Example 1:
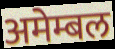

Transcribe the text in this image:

अमेम्बल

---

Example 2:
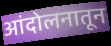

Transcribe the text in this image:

आंदोलनातून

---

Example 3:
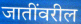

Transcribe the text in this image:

जातींवरील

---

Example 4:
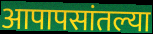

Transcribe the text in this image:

आपापसांतल्या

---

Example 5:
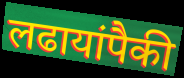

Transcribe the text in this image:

लढायांपैकी